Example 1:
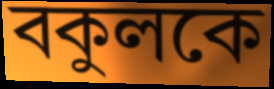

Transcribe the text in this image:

বকুলকে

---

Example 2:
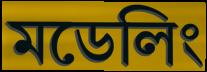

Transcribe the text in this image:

মডেলিং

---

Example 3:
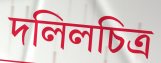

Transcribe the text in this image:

দলিলচিত্র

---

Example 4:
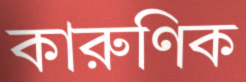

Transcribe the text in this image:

কারুণিক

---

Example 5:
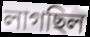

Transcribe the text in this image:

লাগছিল